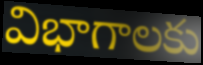
విభాగాలకు